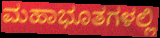
ಮಹಾಭೂತಗಳಲ್ಲಿ